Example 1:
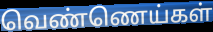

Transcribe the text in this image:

வெண்ணெய்கள்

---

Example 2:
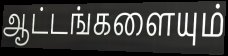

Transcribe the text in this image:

ஆட்டங்களையும்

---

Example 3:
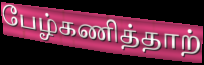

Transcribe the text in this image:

பேழ்கணித்தாற்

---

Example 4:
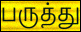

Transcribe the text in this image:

பருத்து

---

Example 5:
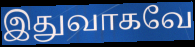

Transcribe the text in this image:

இதுவாகவே